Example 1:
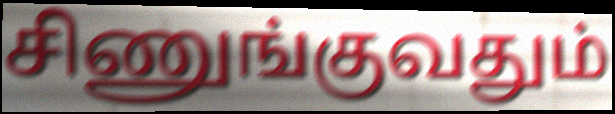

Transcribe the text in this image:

சிணுங்குவதும்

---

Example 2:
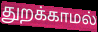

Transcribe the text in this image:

துறக்காமல்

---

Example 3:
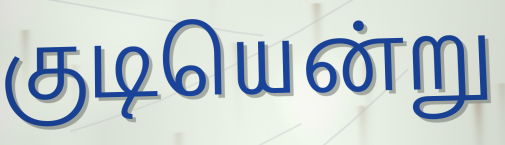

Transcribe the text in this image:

குடியென்று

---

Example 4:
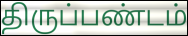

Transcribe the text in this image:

திருப்பண்டம்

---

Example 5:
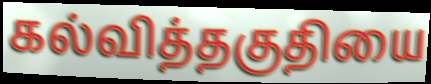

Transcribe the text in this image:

கல்வித்தகுதியை